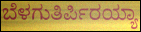
ಬೆಳಗುತಿರ್ಪಿರಯ್ಯಾ